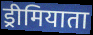
ड्रीमियाता